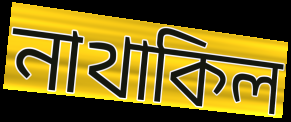
নাথাকিল